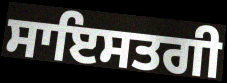
ਸਾਇਸਤਗੀ